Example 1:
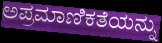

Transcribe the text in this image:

ಅಪ್ರಮಾಣಿಕತೆಯನ್ನು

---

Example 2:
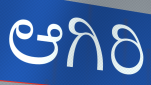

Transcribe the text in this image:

ಆಗಿರಿ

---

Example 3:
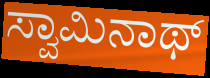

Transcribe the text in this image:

ಸ್ವಾಮಿನಾಥ್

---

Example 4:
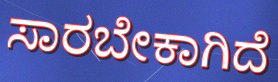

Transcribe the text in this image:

ಸಾರಬೇಕಾಗಿದೆ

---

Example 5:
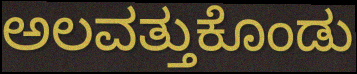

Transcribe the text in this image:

ಅಲವತ್ತುಕೊಂಡು